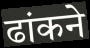
ढांकने